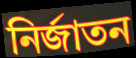
নিৰ্জাতন